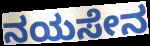
ನಯಸೇನ